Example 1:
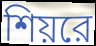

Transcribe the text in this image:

শিয়রে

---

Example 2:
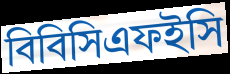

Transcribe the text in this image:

বিবিসিএফইসি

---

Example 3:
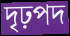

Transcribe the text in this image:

দৃঢ়পদ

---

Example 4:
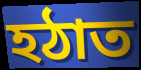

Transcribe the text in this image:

হঠাত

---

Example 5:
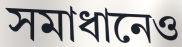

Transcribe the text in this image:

সমাধানেও